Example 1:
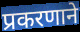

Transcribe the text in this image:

प्रकरणाने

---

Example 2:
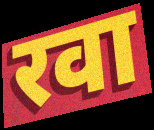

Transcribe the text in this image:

रवा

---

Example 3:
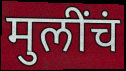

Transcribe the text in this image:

मुलींचं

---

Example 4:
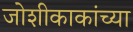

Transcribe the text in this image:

जोशीकाकांच्या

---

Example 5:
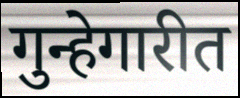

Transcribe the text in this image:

गुन्हेगारीत